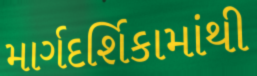
માર્ગદર્શિકામાંથી